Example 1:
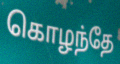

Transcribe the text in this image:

கொழந்தே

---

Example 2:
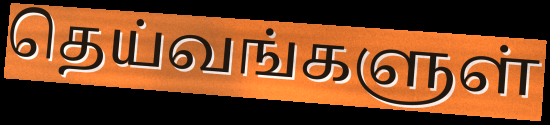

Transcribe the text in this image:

தெய்வங்களுள்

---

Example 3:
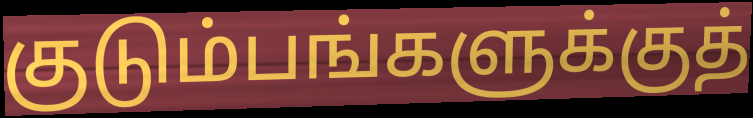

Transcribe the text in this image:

குடும்பங்களுக்குத்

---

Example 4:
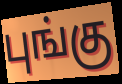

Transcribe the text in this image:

புங்கு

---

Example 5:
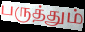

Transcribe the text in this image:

பருத்தும்